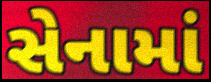
સેનામાં